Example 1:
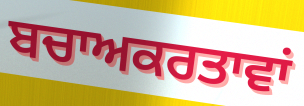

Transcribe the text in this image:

ਬਚਾਅਕਰਤਾਵਾਂ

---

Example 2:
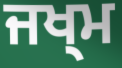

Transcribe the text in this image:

ਜਖ੍ਮ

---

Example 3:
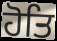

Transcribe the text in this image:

ਹੋਤਿ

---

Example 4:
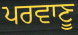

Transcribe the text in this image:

ਪਰਵਾਣੂ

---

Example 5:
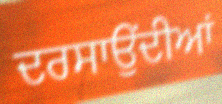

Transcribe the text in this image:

ਦਰਸਾਉਂਦੀਆਂ